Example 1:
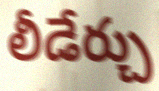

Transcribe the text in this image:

లీడేర్చు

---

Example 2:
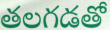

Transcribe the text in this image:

తలగడతో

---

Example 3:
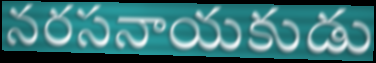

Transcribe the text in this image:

నరసనాయకుడు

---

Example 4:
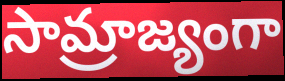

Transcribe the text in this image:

సామ్రాజ్యంగా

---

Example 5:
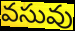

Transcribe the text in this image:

వసువు